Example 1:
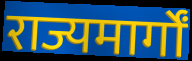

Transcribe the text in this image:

राज्यमार्गों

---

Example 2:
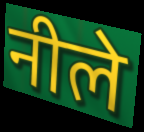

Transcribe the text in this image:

नीले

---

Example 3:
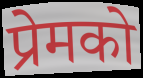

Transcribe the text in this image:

प्रेमको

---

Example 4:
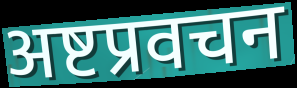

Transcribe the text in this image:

अष्टप्रवचन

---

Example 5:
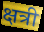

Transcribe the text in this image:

क्षत्री